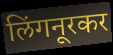
लिंगनूरकर